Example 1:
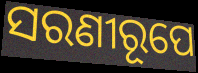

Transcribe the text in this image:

ସରଣୀରୂପେ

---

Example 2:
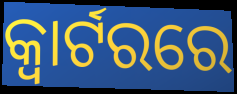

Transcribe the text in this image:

କ୍ବାର୍ଟରରେ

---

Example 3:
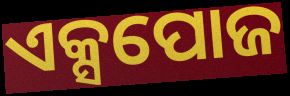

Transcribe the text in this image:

ଏକ୍ସପୋଜ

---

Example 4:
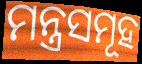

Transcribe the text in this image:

ମନ୍ତ୍ରସମୂହ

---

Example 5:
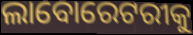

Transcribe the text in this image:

ଲାବୋରେଟରୀକୁ